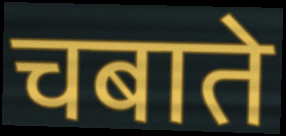
चबाते